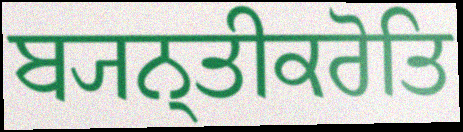
ਬ੍ਯਨ੍ਤੀਕਰੋਤਿ